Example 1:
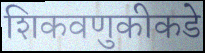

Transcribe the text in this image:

शिकवणुकीकडे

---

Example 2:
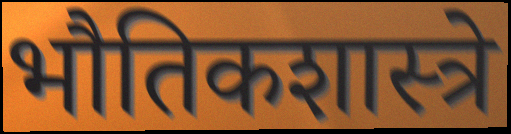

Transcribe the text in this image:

भौतिकशास्त्रे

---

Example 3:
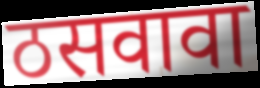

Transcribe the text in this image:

ठसवावा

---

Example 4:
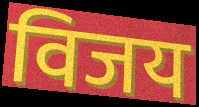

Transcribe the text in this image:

विजय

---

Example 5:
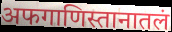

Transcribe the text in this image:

अफगाणिस्तानातलं